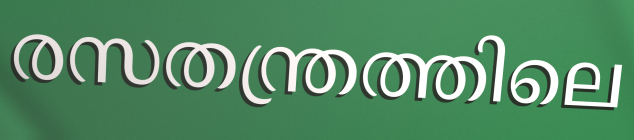
രസതന്ത്രത്തിലെ